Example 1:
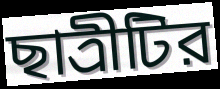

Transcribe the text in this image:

ছাত্রীটির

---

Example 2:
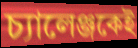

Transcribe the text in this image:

চ্যালেঞ্জকেই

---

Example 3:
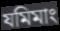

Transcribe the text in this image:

যমিমাং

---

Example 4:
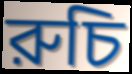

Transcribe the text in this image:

রুচি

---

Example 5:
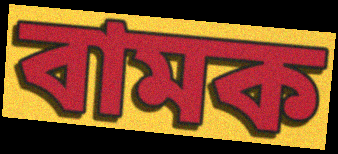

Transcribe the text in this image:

বামক